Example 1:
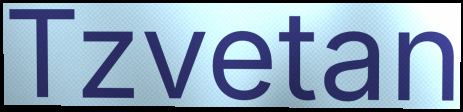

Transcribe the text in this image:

Tzvetan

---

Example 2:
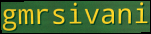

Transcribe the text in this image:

gmrsivani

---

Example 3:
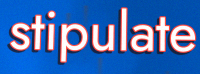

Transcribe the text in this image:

stipulate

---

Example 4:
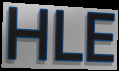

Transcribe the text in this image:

HLE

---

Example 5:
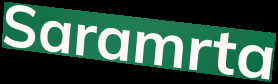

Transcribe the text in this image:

Saramrta